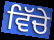
ਵਿੱਚੇ